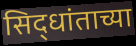
सिद्धांताच्या